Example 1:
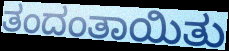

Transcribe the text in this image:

ತಂದಂತಾಯಿತು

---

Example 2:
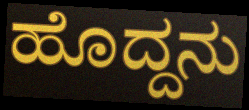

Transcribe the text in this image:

ಹೊದ್ದನು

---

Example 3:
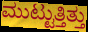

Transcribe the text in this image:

ಮುಟ್ಟುತ್ತಿತ್ತು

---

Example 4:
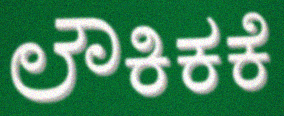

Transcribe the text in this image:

ಲೌಕಿಕಕೆ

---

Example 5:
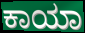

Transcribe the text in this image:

ಕಾಯಾ